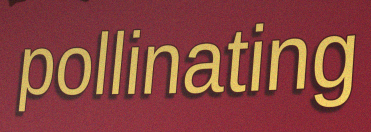
pollinating